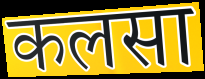
कलसा